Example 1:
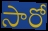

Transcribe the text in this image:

సారో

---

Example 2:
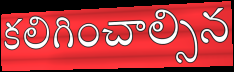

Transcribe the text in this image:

కలిగించాల్సిన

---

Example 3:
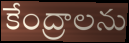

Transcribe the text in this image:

కేంద్రాలను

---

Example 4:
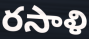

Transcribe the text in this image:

రసాళి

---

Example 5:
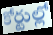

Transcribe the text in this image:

కోర్టుల్లో